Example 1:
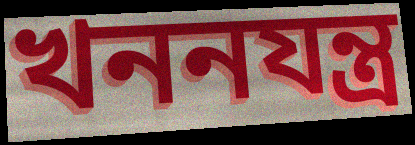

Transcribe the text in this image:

খননযন্ত্র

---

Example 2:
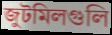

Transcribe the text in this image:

জুটমিলগুলি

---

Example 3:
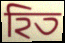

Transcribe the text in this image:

হিত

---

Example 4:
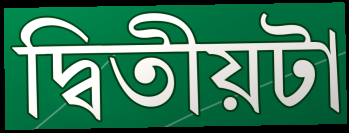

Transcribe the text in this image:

দ্বিতীয়টা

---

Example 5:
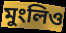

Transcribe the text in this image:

মুংলিও